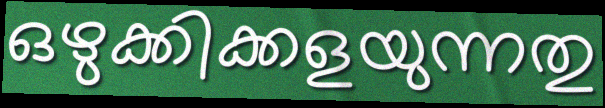
ഒഴുക്കിക്കളയുന്നതു